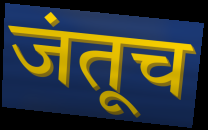
जंतूच